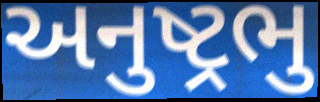
અનુષ્ટ્રભુ